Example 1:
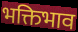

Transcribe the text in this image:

भक्तिभाव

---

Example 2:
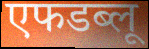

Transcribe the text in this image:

एफडब्लू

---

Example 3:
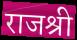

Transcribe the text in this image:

राजश्री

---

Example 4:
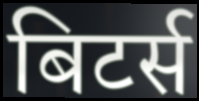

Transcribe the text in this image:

बिटर्स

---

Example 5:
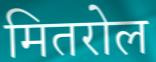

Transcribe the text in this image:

मितरोल